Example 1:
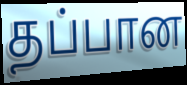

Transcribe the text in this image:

தப்பான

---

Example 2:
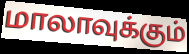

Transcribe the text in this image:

மாலாவுக்கும்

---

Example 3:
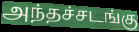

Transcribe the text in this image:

அந்தச்சடங்கு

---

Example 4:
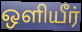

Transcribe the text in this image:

ஒளியீர்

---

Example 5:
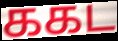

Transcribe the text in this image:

ககட